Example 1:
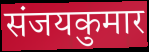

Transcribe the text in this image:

संजयकुमार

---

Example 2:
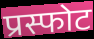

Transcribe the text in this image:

प्रस्फोट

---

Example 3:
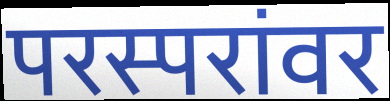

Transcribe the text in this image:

परस्परांवर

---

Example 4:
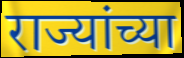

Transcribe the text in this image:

राज्यांच्या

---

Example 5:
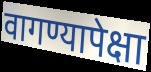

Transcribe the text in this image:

वागण्यापेक्षा